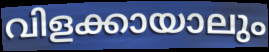
വിളക്കായാലും